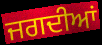
ਜਗਦੀਆਂ